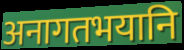
अनागतभयानि